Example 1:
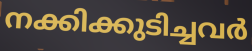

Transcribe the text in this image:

നക്കിക്കുടിച്ചവർ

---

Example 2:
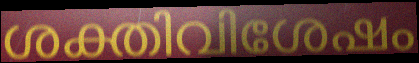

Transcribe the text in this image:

ശക്തിവിശേഷം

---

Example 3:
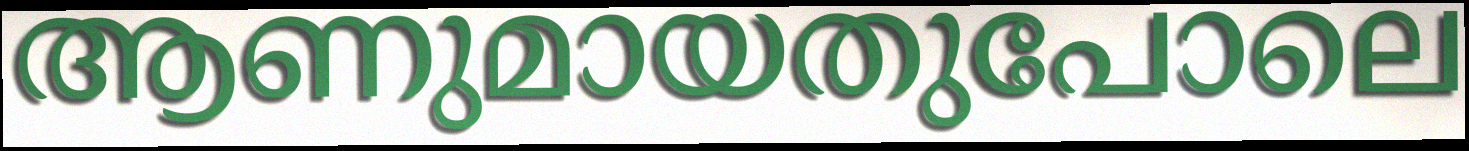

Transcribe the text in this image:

ആണുമായതുപോലെ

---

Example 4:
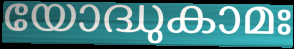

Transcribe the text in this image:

യോദ്ധുകാമഃ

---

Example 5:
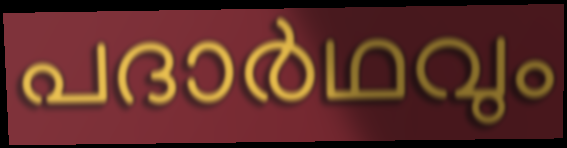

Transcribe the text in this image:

പദാർഥവും